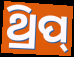
ଥ୍ରିପ୍